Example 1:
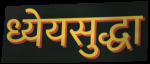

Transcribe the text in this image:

ध्येयसुद्धा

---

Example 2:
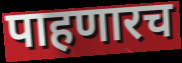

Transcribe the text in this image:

पाहणारच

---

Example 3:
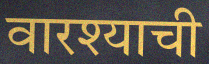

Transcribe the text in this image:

वारश्याची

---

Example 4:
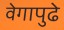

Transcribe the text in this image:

वेगापुढे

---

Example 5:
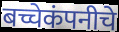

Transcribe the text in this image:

बच्चेकंपनीचे